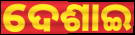
ଦେଶାଇ